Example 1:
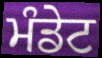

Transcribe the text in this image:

ਮੰਡੇਟ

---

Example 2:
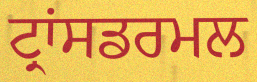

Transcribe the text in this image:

ਟ੍ਰਾਂਸਡਰਮਲ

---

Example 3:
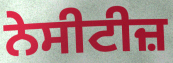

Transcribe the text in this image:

ਨੇਸੀਟੀਜ਼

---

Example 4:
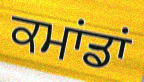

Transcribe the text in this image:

ਕਮਾਂਡਾਂ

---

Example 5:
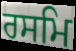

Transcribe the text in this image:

ਰਸਮਿ